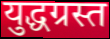
युद्धग्रस्त